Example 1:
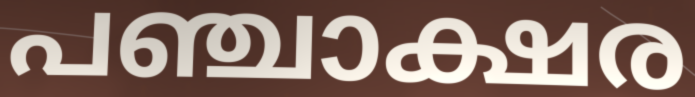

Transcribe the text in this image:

പഞ്ചാക്ഷര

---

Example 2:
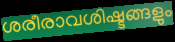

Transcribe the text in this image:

ശരീരാവശിഷ്ടങ്ങളും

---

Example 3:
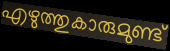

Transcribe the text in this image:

എഴുത്തുകാരുമുണ്ട്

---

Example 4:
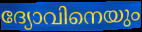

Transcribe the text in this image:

ദ്യോവിനെയും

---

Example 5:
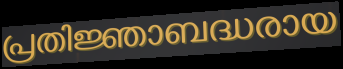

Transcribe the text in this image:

പ്രതിജ്ഞാബദ്ധരായ